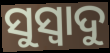
ସୁସ୍ୱାଦୁ